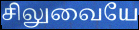
சிலுவையே